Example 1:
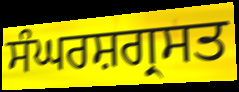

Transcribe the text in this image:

ਸੰਘਰਸ਼ਗ੍ਰਸਤ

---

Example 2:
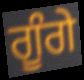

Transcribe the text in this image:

ਗੂੰਗੇ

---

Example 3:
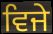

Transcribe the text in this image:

ਵਿਜੇ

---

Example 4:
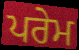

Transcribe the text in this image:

ਪਰੇਮ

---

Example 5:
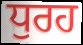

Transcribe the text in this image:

ਧੁਰਹ